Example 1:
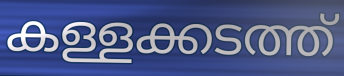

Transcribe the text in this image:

കള്ളക്കടത്ത്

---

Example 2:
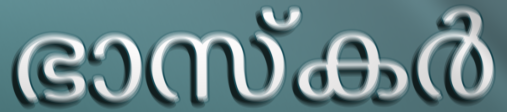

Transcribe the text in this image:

ഭാസ്‌കർ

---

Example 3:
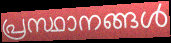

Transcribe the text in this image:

പ്രസ്ഥാനങ്ങൾ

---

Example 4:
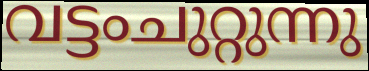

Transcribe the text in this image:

വട്ടംചുറ്റുന്നു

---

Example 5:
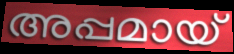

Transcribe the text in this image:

അപ്പമായ്